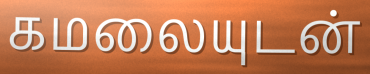
கமலையுடன்